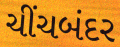
ચીંચબંદર